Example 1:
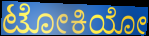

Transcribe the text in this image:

ಟೋಕಿಯೋ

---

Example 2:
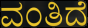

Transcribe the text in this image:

ವಂತಿದೆ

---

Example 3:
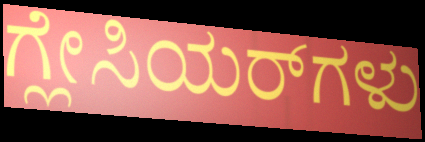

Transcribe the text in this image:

ಗ್ಲೇಸಿಯರ್‌ಗಳು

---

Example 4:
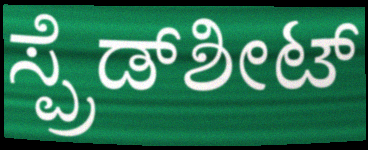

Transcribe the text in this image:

ಸ್ಪ್ರೆಡ್‌ಶೀಟ್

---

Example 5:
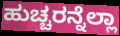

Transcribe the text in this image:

ಹುಚ್ಚರನ್ನೆಲ್ಲಾ